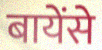
बायेंसे